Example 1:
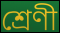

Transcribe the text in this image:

শ্ৰেণী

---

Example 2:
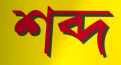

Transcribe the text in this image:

শব্দ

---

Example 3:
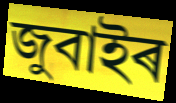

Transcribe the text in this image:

জুবাইৰ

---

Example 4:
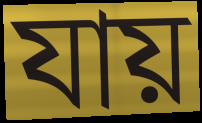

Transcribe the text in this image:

যায়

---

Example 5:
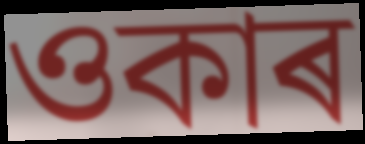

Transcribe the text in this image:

ওকাৰ